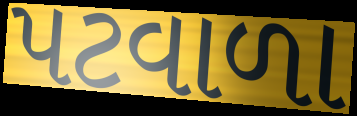
પટવાળા